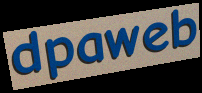
dpaweb